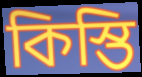
কিস্তি